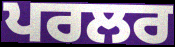
ਪਰਲਰ